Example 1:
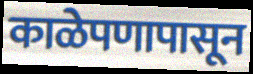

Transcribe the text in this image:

काळेपणापासून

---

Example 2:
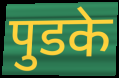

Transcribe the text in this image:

पुडके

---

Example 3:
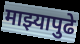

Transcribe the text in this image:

माझ्यापुढे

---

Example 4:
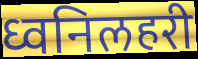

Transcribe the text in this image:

ध्वनिलहरी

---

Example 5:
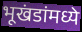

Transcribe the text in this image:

भूखंडांमध्ये